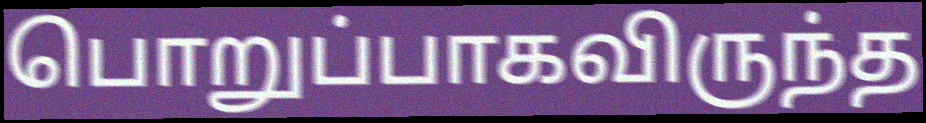
பொறுப்பாகவிருந்த